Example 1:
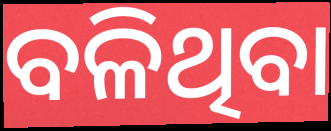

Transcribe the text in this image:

ବଳିଥିବା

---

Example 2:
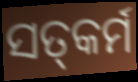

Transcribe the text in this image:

ସତ୍‍କର୍ମ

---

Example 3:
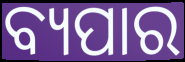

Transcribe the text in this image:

ବ୍ୟପାର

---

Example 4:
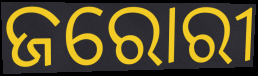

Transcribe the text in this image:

ଜରୋରୀ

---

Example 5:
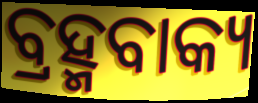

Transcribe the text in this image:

ବ୍ରହ୍ମବାକ୍ୟ